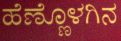
ಹೆಣ್ಣೊಳಗಿನ